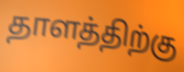
தாளத்திற்கு